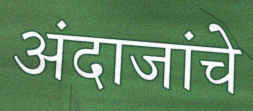
अंदाजांचे